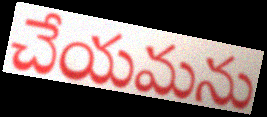
చేయమను